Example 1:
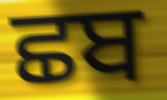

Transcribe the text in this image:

ਛਬ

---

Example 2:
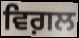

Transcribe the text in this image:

ਵਿਗ਼ਲ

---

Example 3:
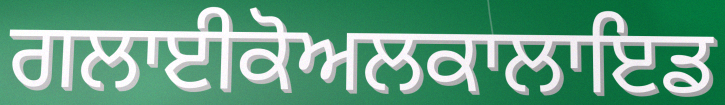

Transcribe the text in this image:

ਗਲਾਈਕੋਅਲਕਾਲਾਇਡ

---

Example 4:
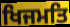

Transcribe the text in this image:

ਖਿਜਮਤਿ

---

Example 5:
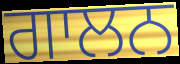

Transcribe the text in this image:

ਗਾਲਨ